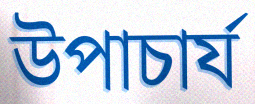
উপাচার্য